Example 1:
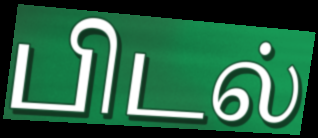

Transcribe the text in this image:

பிடல்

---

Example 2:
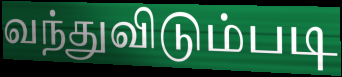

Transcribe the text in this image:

வந்துவிடும்படி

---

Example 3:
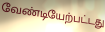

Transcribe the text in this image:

வேண்டியேற்பட்டது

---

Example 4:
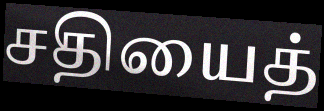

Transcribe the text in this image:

சதியைத்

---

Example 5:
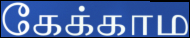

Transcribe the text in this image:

கேக்காம